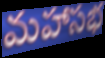
మహాసభ